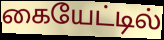
கையேட்டில்